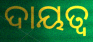
ଦାୟତ୍ବ